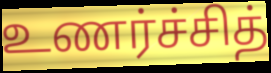
உணர்ச்சித்